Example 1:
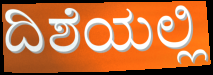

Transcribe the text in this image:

ದಿಶೆಯಲ್ಲಿ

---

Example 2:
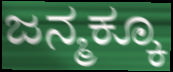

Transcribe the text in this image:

ಜನ್ಮಕ್ಕೂ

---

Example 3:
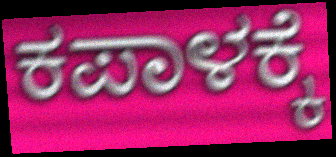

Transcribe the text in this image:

ಕಪಾಳಕ್ಕೆ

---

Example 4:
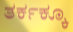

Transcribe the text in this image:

ತರ್ಕಕ್ಕೂ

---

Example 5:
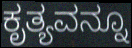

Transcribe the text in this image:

ಕೃತ್ಯವನ್ನೂ